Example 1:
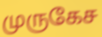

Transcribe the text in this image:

முருகேச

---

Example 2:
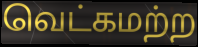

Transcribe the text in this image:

வெட்கமற்ற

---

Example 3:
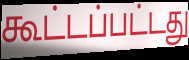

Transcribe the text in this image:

கூட்டப்பட்டது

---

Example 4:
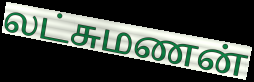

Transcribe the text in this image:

லட்சுமணன்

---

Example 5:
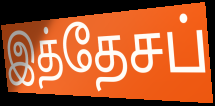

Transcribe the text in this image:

இத்தேசப்